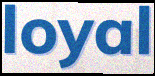
loyal